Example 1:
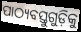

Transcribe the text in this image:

ପାଠ୍ୟବସ୍ତୁଗୁଡ଼ିକୁ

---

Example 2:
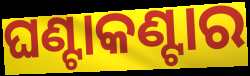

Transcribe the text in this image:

ଘଣ୍ଟାକଣ୍ଟାର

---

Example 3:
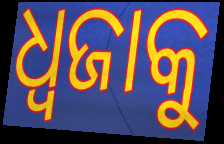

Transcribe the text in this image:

ଧ୍ୱଜାକୁ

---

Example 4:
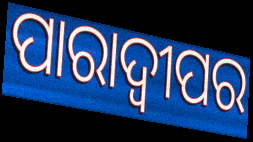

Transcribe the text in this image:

ପାରାଦ୍ବୀପର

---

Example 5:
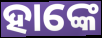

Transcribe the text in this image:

ହାଙ୍କେ